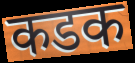
कडक